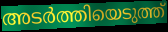
അടർത്തിയെടുത്ത്